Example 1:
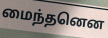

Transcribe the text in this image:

மைந்தனென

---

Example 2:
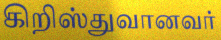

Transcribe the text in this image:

கிறிஸ்துவானவர்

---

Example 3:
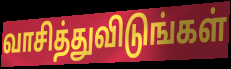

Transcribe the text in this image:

வாசித்துவிடுங்கள்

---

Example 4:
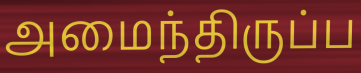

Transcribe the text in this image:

அமைந்திருப்ப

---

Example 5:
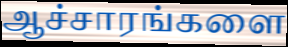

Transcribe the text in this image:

ஆச்சாரங்களை